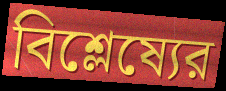
বিশ্লেষ্যের